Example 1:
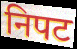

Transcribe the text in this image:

निपट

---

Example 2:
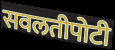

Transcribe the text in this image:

सवलतीपोटी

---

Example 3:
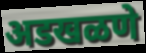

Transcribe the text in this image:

अडखळणे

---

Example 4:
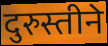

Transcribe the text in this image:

दुरुस्तीने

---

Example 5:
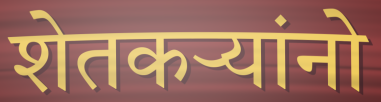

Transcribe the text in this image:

शेतकऱ्यांनो